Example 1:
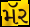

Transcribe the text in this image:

મૅર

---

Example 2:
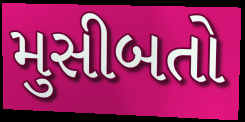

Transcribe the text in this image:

મુસીબતો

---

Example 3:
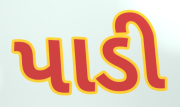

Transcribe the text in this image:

પાડી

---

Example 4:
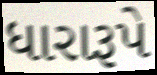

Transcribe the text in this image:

ધારારૂપે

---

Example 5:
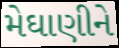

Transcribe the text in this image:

મેઘાણીને